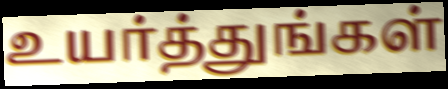
உயர்த்துங்கள்